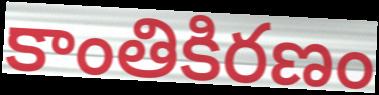
కాంతికిరణం